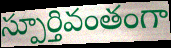
స్పూర్తివంతంగా